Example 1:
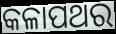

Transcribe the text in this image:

କଳାପଥର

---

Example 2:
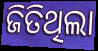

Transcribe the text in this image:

ଜିତିଥିଲା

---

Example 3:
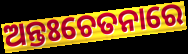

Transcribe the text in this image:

ଅନ୍ତଃଚେତନାରେ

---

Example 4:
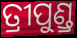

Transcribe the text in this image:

ତ୍ରୀପୁଣ୍ଡ୍ର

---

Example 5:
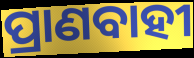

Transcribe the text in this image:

ପ୍ରାଣବାହୀ